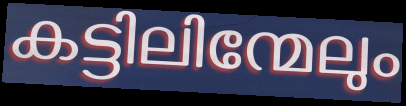
കട്ടിലിന്മേലും